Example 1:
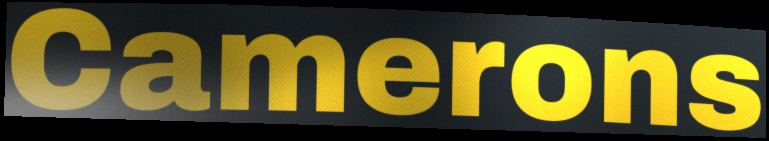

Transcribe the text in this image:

Camerons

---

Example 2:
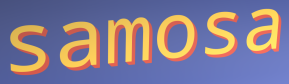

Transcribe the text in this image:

samosa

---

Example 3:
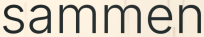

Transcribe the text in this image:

sammen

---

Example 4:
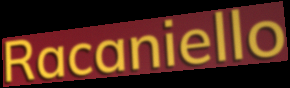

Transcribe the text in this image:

Racaniello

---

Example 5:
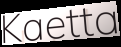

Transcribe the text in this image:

Kaetta